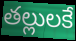
తల్లులకే